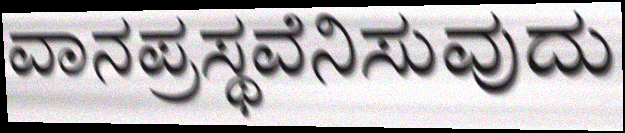
ವಾನಪ್ರಸ್ಥವೆನಿಸುವುದು